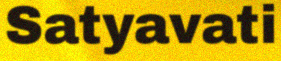
Satyavati